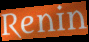
Renin